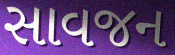
સાવજન